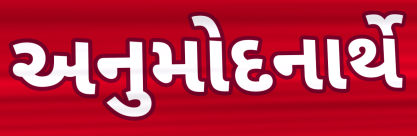
અનુમોદનાર્થે